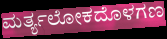
ಮರ್ತ್ಯಲೋಕದೊಳಗಣ